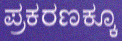
ಪ್ರಕರಣಕ್ಕೂ